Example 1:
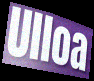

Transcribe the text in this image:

Ulloa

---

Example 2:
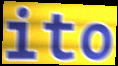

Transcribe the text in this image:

ito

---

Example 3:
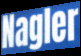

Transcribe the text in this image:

Nagler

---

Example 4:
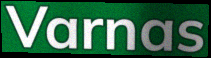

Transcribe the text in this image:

Varnas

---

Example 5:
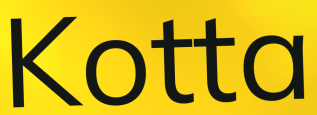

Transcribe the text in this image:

Kotta